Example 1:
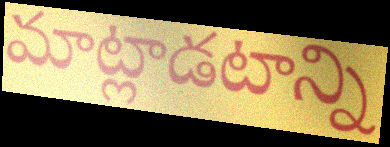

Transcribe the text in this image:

మాట్లాడటాన్ని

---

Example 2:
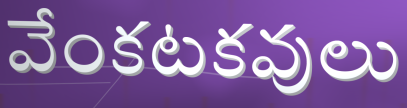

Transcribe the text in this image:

వేంకటకవులు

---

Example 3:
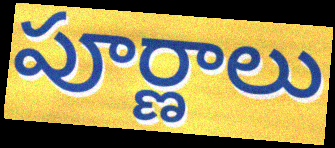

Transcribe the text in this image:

పూర్ణాలు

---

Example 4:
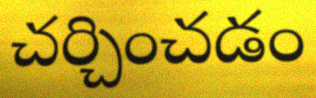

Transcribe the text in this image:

చర్చించడం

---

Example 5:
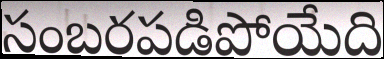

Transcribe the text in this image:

సంబరపడిపోయేది